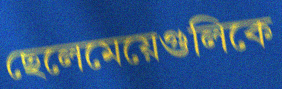
ছেলেমেয়েগুলিকে